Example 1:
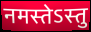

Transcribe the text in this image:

नमस्तेऽस्तु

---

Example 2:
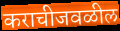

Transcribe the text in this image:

कराचीजवळील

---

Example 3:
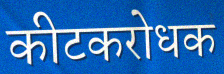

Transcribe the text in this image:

कीटकरोधक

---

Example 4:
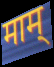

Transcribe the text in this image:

माम्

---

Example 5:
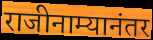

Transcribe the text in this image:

राजीनाम्यानंतर